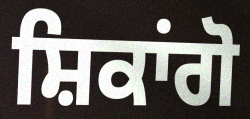
ਸ਼ਿਕਾਂਗੋ